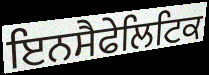
ਇਨਸੈਫੇਲਿਟਿਕ